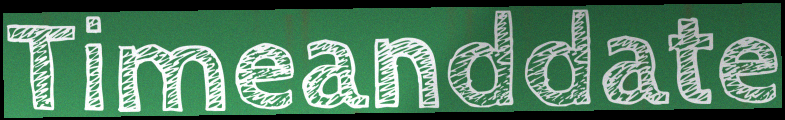
Timeanddate